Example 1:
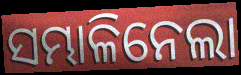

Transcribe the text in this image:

ସମ୍ଭାଳିନେଲା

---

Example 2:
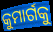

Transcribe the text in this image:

କୁମାର୍ଗକୁ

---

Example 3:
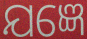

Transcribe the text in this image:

ଯଜ୍ଞେ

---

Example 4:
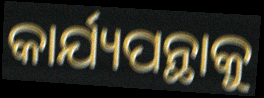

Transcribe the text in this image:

କାର୍ଯ୍ୟପନ୍ଥାକୁ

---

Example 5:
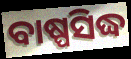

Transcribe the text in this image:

ବାଷ୍ପସିଦ୍ଧ